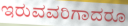
ಇರುವವರಿಗಾದರೂ